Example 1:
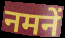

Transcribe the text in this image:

नमनें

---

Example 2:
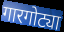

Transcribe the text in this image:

गारगोट्या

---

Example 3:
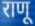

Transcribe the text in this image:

राणू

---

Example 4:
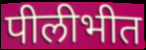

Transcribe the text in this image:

पीलीभीत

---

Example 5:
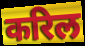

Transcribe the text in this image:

करिल